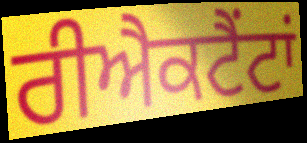
ਰੀਐਕਟੈਂਟਾਂ